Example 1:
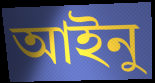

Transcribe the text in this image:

আইনু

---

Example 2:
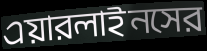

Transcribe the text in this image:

এয়ারলাইনসের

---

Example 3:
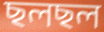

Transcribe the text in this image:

ছলছল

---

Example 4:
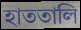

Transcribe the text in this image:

হাততালি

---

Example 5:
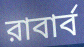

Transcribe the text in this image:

রাবার্ব